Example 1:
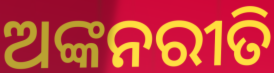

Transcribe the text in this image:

ଅଙ୍କନରୀତି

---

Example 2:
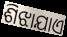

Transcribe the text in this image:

ଶିଝାଯାଏ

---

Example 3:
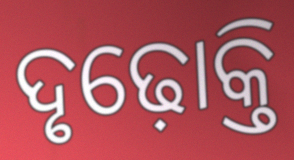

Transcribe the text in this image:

ଦୃଢ଼ୋକ୍ତି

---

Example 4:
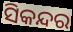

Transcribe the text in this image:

ସିକନ୍ଦର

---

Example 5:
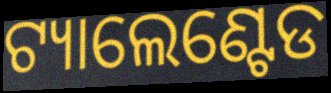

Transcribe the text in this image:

ଟ୍ୟାଲେଣ୍ଟେଡ